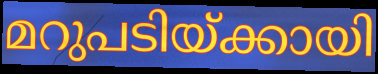
മറുപടിയ്ക്കായി